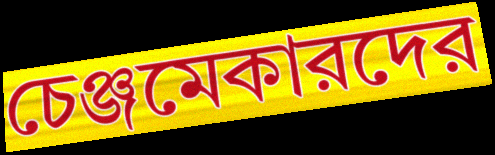
চেঞ্জমেকারদের